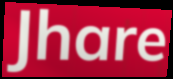
Jhare